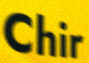
Chir